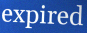
expired